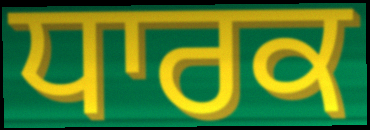
ਧਾਰਕ